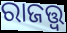
ରାଜତ୍ତ୍ୱ